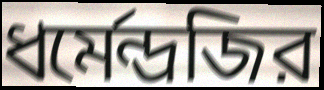
ধর্মেন্দ্রজির